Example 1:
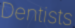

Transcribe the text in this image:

Dentists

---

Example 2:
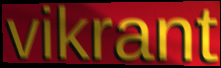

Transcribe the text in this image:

vikrant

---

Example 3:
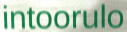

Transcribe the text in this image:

intoorulo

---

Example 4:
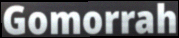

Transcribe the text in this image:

Gomorrah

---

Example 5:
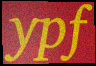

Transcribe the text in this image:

ypf